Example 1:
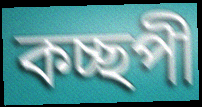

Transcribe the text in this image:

কচ্ছপী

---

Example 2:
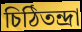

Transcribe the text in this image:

চিঠিতন্দ্রা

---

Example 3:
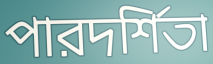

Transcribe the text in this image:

পারদর্শিতা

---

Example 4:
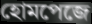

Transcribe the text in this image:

হোমপেজে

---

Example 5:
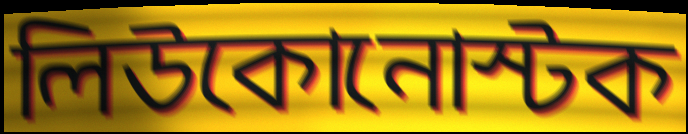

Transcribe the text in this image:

লিউকোনোস্টক